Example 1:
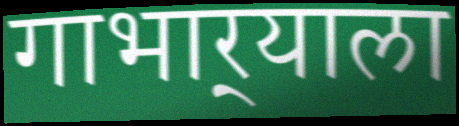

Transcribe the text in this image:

गाभार्याला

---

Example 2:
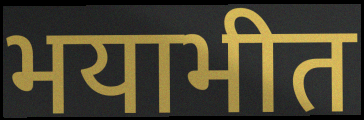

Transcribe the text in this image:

भयाभीत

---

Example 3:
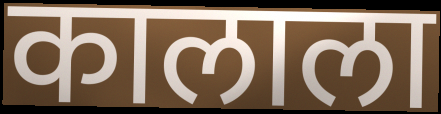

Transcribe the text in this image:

कालाला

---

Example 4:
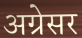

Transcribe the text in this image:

अग्रेसर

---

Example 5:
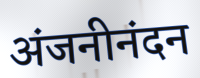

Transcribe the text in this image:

अंजनीनंदन